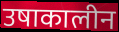
उषाकालीन